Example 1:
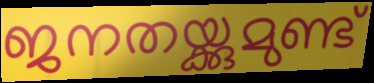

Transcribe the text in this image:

ജനതയ്ക്കുമുണ്ട്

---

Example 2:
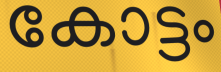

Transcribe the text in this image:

കോട്ടം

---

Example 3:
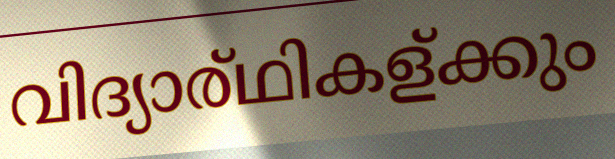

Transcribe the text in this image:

വിദ്യാര്ഥികള്ക്കും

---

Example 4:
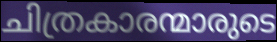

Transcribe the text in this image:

ചിത്രകാരന്മാരുടെ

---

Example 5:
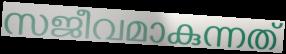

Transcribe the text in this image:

സജീവമാകുന്നത്